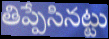
తిప్పేసినట్టు